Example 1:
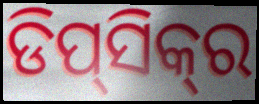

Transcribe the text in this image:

ଡିପ୍‌ସିକ୍‌ର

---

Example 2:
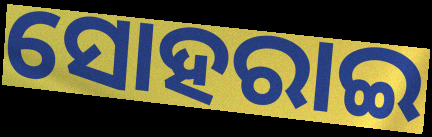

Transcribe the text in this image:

ସୋହରାଇ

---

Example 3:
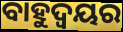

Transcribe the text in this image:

ବାହୁଦ୍ୱୟର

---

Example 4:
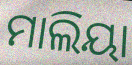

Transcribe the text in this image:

ମାଲିୟା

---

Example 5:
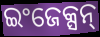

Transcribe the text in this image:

ଇଂଜେକ୍ସନ୍